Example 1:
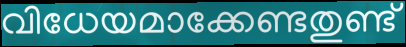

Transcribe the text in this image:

വിധേയമാക്കേണ്ടതുണ്ട്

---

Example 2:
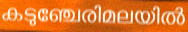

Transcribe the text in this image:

കടുഞ്ചേരിമലയിൽ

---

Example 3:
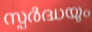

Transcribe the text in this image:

സ്പർദ്ധയും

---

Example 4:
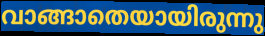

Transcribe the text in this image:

വാങ്ങാതെയായിരുന്നു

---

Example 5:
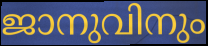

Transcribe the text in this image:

ജാനുവിനും